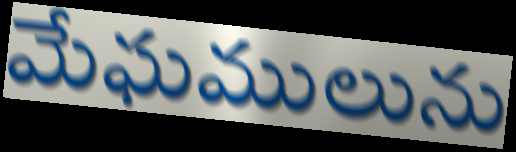
మేఘములును